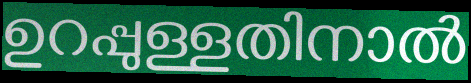
ഉറപ്പുള്ളതിനാൽ